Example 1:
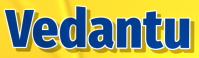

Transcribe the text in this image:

Vedantu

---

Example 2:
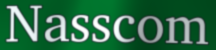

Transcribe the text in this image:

Nasscom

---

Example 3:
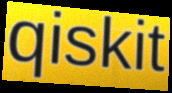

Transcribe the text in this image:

qiskit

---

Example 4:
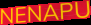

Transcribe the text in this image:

NENAPU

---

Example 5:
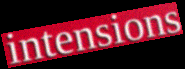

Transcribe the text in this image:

intensions